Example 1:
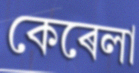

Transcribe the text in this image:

কেৰেলা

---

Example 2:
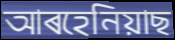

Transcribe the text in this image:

আৰহেনিয়াছ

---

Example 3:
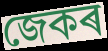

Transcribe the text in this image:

জেকৰ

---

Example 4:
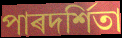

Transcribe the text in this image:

পাৰদৰ্শিতা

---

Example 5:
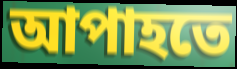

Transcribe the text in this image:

আপাহতে